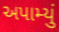
અપામ્યું